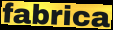
fabrica